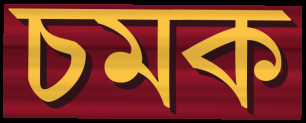
চমক